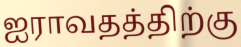
ஐராவதத்திற்கு